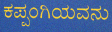
ಕಪ್ಪಂಗಿಯವನು